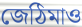
জেঠিমাও